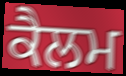
ਕੈਲਮ